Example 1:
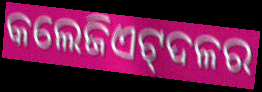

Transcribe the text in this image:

କଲେଜିଏଟ୍‍ଦଳର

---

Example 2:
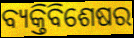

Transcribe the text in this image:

ବ୍ୟକ୍ତିବିଶେଷର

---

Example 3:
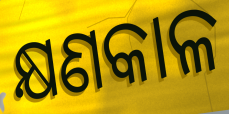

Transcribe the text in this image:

କ୍ଷଣକାଳ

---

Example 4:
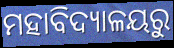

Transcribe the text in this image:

ମହାବିଦ୍ୟାଳୟରୁ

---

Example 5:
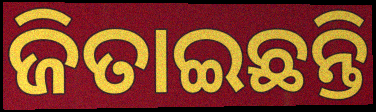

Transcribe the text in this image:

ଜିତାଇଛନ୍ତି